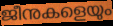
ജീനുകളെയും